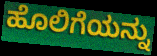
ಹೊಲಿಗೆಯನ್ನು